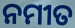
ନମୀତ